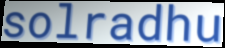
solradhu